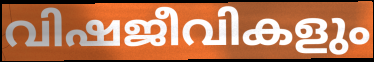
വിഷജീവികളും